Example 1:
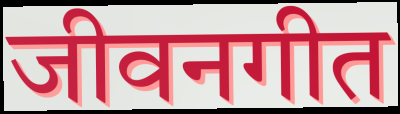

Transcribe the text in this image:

जीवनगीत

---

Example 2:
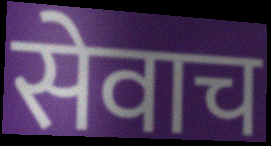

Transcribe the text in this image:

सेवाच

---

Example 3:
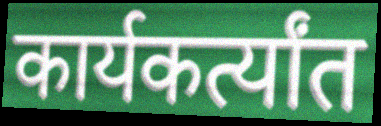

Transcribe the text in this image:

कार्यकर्त्यांत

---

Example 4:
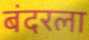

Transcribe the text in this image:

बंदरला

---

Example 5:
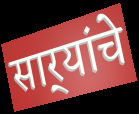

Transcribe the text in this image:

सार्यांचे